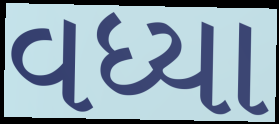
વધ્યા